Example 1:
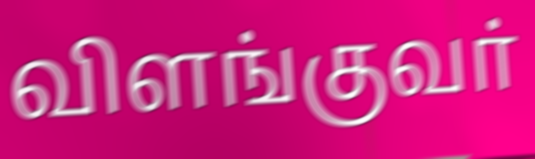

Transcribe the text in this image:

விளங்குவர்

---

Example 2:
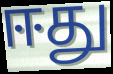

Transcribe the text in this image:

ஈது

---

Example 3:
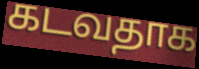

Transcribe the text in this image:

கடவதாக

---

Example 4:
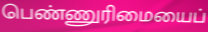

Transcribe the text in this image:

பெண்ணுரிமையைப்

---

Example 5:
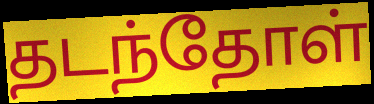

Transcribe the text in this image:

தடந்தோள்